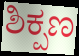
ಶಿಕ್ಪಣ